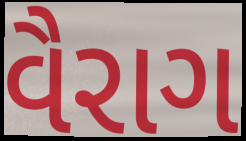
વૈરાગ